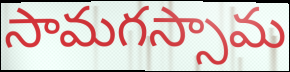
సామగస్సామ